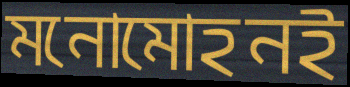
মনোমোহনই